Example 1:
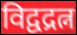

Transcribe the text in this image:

विद्वद्रत्न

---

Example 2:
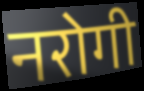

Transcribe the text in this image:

नरोगी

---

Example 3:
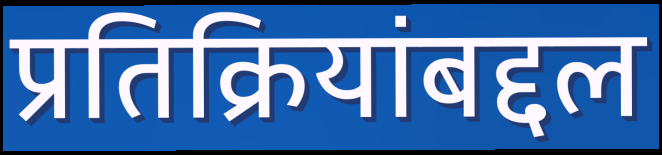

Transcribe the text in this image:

प्रतिक्रियांबद्दल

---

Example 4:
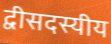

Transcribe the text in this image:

द्वीसदस्यीय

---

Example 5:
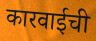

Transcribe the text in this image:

कारवाईची